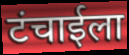
टंचाईला